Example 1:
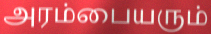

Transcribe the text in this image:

அரம்பையரும்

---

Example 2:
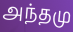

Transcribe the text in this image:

அந்தமு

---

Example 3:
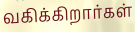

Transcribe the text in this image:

வகிக்கிறார்கள்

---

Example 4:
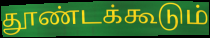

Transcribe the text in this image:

தூண்டக்கூடும்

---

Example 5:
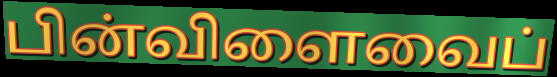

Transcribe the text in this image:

பின்விளைவைப்